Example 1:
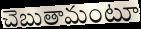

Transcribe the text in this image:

చెబుతామంటూ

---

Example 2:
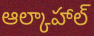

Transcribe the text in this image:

ఆల్కాహాల్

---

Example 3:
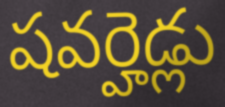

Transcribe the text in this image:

షవర్హెడ్లు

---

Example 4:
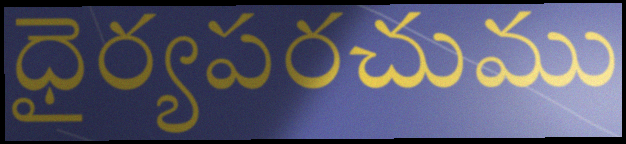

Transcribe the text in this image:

ధైర్యపరచుము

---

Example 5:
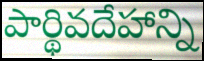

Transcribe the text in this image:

పార్థివదేహాన్ని